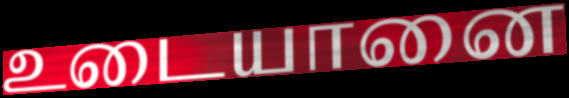
உடையானை